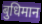
बुधिमान